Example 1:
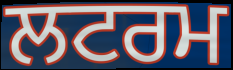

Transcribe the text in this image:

ਲਟਰਮ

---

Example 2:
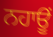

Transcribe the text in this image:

ਨਹਾਊਂ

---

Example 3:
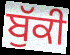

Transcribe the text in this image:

ਬੁੱਕੀ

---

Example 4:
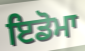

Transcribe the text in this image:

ਇਡੋਮਾ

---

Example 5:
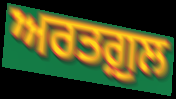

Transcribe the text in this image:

ਅਰਤਗ਼ੁਲ